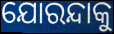
ଯୋରନ୍ଦାକୁ